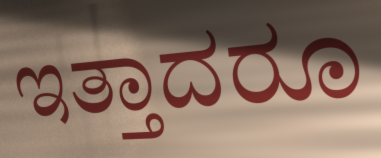
ಇತ್ತಾದರೂ